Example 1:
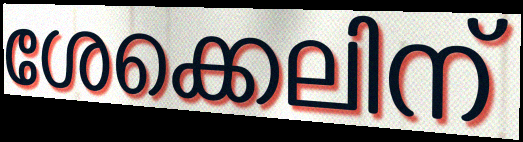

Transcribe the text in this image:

ശേക്കെലിന്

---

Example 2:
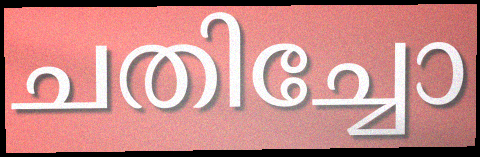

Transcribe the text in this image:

ചതിച്ചോ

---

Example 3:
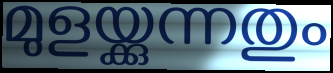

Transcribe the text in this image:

മുളയ്ക്കുന്നതും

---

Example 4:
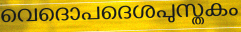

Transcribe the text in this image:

വെദൊപദെശപുസ്തകം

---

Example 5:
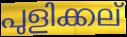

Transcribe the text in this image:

പുളിക്കല്